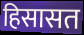
हिसासत